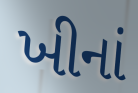
ખીનાં